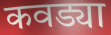
कवड्या